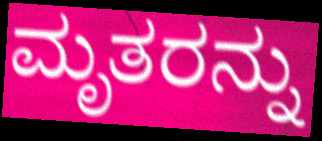
ಮೃತರನ್ನು